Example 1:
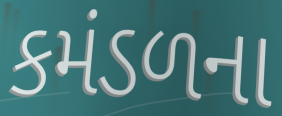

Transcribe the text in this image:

કમંડળના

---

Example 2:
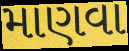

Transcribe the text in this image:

માણવા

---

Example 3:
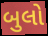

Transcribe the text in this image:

બુલો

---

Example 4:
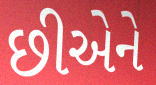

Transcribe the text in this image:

છીએને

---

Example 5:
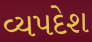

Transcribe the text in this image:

વ્યપદેશ